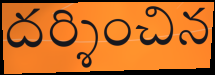
దర్శించిన